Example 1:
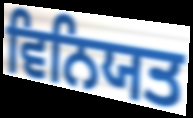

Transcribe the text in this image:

ਵਿਨਿਯਤ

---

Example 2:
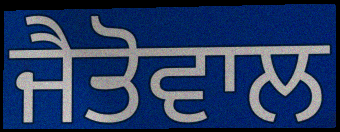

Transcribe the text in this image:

ਜੈਤੋਵਾਲ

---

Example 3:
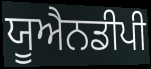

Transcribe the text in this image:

ਯੂਐਨਡੀਪੀ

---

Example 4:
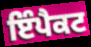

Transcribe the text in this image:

ਇੰਪੈਕਟ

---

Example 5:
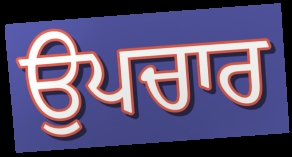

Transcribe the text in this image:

ਉਪਚਾਰ